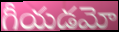
గీయడమో